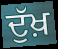
ਦੁੱਖ਼